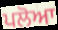
ਪਲੋਆ